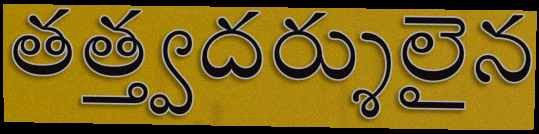
తత్త్వదర్శులైన